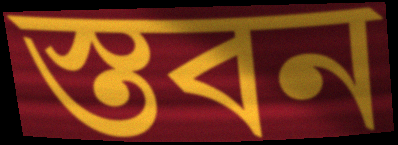
স্তবন